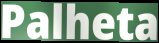
Palheta